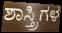
ಶಾಸ್ತ್ರಿಗಳ